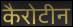
कैरोटीन